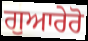
ਗੁਆਰੇਰੋ